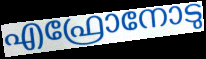
എഫ്രോനോടു